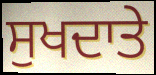
ਸੁਖਦਾਤੇ